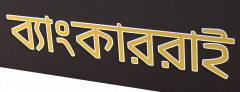
ব্যাংকাররাই